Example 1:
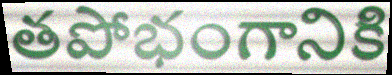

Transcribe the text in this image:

తపోభంగానికి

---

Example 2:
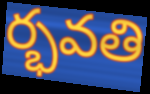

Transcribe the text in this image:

ర్భవతి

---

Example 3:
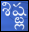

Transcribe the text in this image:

శిష్ట్ల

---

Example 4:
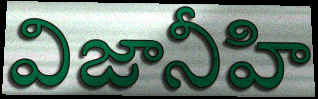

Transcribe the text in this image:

విజానీహి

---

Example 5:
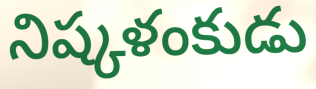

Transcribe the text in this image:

నిష్కళంకుడు